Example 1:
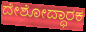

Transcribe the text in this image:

ದೇಶೋದ್ಧಾರಕ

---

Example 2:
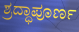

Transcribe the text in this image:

ಶ್ರದ್ಧಾಪೂರ್ಣ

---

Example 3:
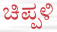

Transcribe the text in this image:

ಚಿಪ್ಪಳಿ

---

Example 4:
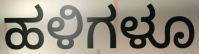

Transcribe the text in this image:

ಹಳಿಗಳೂ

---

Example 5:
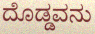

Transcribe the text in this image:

ದೊಡ್ಡವನು